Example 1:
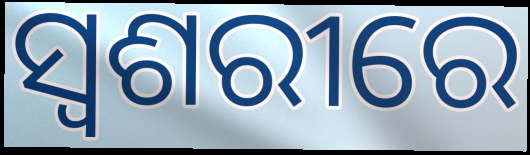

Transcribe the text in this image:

ସ୍ୱଶରୀରେ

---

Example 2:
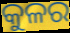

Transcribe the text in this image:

କୁଳର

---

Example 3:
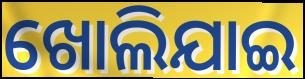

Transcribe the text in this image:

ଖୋଲିଯାଇ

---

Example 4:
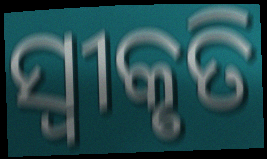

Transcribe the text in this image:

ସ୍ବୀକୃତି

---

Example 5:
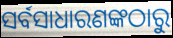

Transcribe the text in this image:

ସର୍ବସାଧାରଣଙ୍କଠାରୁ